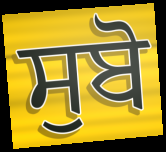
ਸੁਬੋ